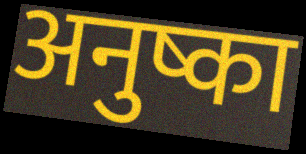
अनुष्का